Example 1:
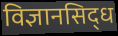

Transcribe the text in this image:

विज्ञानसिद्ध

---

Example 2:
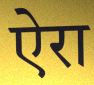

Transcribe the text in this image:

ऐरा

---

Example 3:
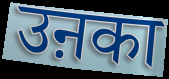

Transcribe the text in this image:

उऩका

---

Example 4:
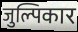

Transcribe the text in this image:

जुल्पिकार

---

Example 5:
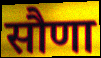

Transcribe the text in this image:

सौणा